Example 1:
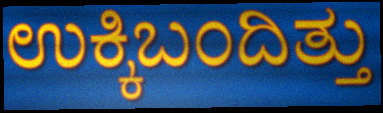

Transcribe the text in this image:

ಉಕ್ಕಿಬಂದಿತ್ತು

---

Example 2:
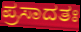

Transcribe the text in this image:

ಪ್ರಸಾದತಃ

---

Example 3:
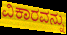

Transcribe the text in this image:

ವಿಕಾರವನ್ನು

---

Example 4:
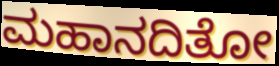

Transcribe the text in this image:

ಮಹಾನದಿತೋ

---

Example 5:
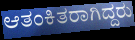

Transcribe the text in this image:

ಆತಂಕಿತರಾಗಿದ್ದರು